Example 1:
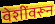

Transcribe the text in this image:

वेशींवरून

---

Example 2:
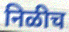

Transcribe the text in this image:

निळीच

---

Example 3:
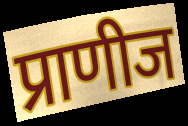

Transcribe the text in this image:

प्राणीज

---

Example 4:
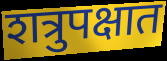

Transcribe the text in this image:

शत्रुपक्षात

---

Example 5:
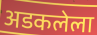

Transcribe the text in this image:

अडकलेला